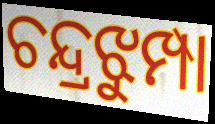
ଚନ୍ଦ୍ରଝୁମ୍ପା